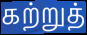
கற்றுத்